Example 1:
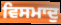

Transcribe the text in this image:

ਵਿਸਮਾਦੁ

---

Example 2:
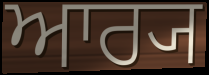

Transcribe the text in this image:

ਆਰ੍ਯ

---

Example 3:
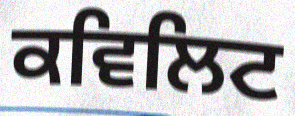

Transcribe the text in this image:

ਕਵਿਲਿਟ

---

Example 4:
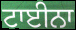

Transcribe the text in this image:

ਟਾਈਨਾ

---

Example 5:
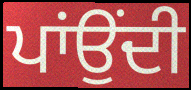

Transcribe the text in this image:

ਪਾਂਉਂਦੀ